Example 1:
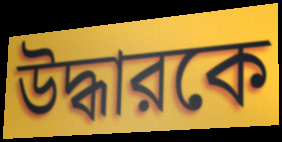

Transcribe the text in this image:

উদ্ধারকে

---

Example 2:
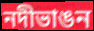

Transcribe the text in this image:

নদীভাঙন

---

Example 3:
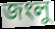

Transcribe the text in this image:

জংলু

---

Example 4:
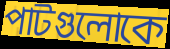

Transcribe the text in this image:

পাটগুলোকে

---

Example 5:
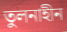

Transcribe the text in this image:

তুলনাহীন